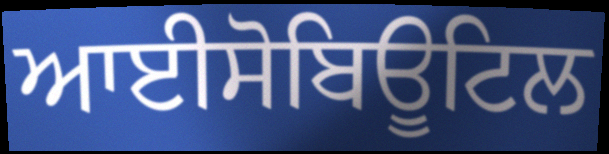
ਆਈਸੋਬਿਊਟਿਲ